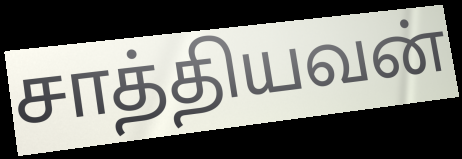
சாத்தியவன்